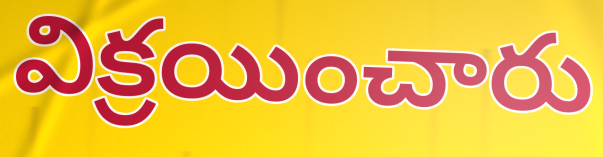
విక్రయించారు